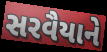
સરવૈયાને